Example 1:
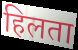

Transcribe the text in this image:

हिलता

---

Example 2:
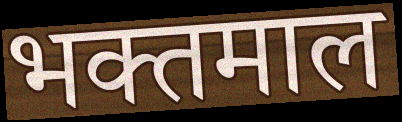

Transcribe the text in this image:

भक्तमाल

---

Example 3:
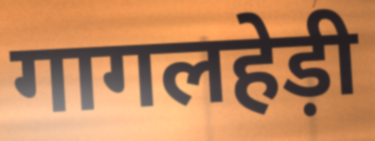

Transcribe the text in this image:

गागलहेड़ी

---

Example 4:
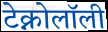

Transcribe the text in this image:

टेक्नोलॉली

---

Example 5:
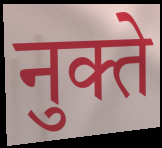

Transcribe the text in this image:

नुक्ते